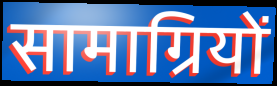
सामाग्रियों